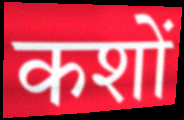
कशों